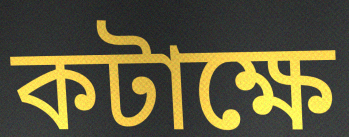
কটাক্ষে